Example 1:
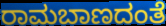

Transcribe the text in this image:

ರಾಮಬಾಣದಂತೆ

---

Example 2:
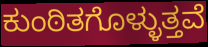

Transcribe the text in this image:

ಕುಂಠಿತಗೊಳ್ಳುತ್ತವೆ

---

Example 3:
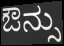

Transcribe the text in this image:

ಔನ್ಸು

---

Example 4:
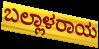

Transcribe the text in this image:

ಬಲ್ಲಾಳರಾಯ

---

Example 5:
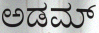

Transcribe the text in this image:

ಅಡಮ್